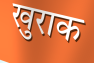
खुराक